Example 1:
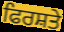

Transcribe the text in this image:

ਫਿਰਸ਼ਤੇ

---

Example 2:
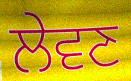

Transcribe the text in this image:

ਲੇਵਣ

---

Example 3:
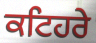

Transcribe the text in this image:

ਕਟਿਹਰੇ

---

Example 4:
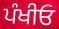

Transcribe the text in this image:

ਪੰਖੀਓ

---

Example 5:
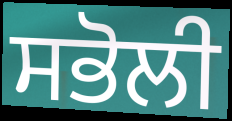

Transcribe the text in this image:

ਸਭੋਲੀ